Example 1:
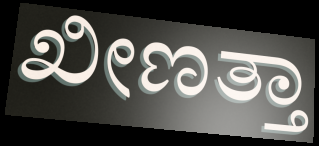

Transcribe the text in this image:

ಖೀಣತ್ತಾ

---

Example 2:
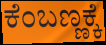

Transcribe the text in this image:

ಕೆಂಬಣ್ಣಕ್ಕೆ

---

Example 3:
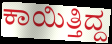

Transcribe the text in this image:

ಕಾಯಿತ್ತಿದ್ದ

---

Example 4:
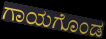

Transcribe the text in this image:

ಗಾಯಗೊಂಡ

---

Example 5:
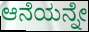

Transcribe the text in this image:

ಆನೆಯನ್ನೇ